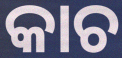
କାଚ